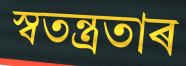
স্বতন্ত্ৰতাৰ